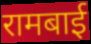
रामबाई